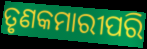
ତୃଣକମାରୀପରି